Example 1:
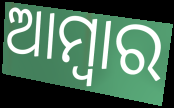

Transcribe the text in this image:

ଆମ୍ବାର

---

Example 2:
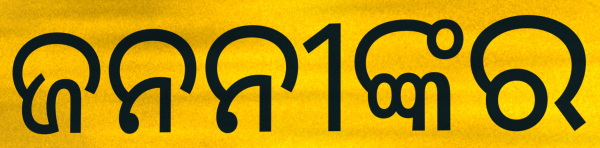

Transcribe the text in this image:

ଜନନୀଙ୍କର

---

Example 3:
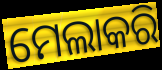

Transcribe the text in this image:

ମେଲାକରି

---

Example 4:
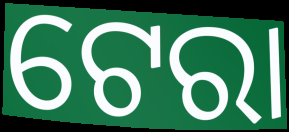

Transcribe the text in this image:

ଟେରା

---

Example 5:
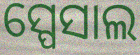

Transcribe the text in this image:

ସ୍ପେସାଲ